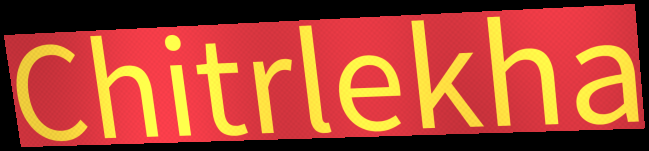
Chitrlekha